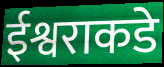
ईश्वराकडे